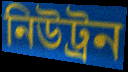
নিউট্রন